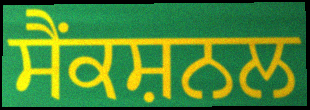
ਸੈਂਕਸ਼ਨਲ